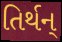
તિર્થન્